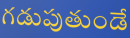
గడుపుతుండే